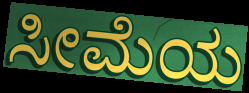
ಸೀಮೆಯ